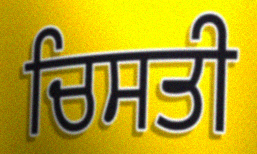
ਚਿਸਤੀ